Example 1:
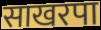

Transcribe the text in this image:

साखरपा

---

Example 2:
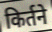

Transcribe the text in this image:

किर्तने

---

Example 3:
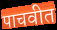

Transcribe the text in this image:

पाचवीत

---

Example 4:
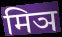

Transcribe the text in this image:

मिञ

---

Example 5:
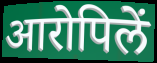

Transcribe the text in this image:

आरोपिलें